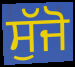
ਸੁੱਜੋ